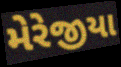
મેરેજીયા